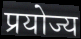
प्रयोज्य